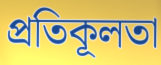
প্রতিকূলতা